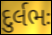
દુર્લભઃ